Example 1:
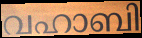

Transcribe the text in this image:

വഹാബി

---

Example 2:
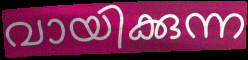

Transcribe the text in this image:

വായിക്കുന്ന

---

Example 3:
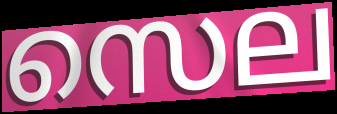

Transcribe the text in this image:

സെല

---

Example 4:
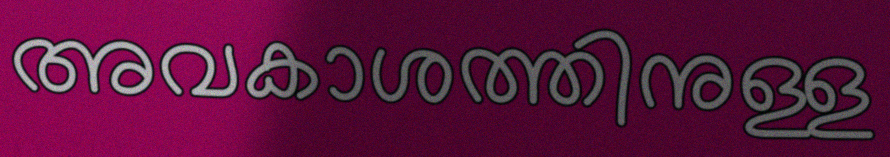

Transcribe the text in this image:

അവകാശത്തിനുള്ള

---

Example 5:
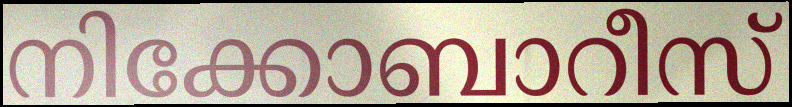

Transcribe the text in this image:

നിക്കോബാറീസ്